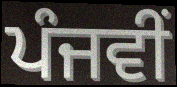
ਪੰਜਵੀਂ